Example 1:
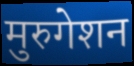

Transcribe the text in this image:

मुरुगेशन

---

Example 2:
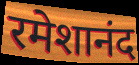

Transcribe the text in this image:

रमेशानंद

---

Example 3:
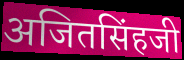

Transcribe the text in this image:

अजितसिंहजी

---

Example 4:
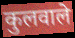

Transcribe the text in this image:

कुलवाले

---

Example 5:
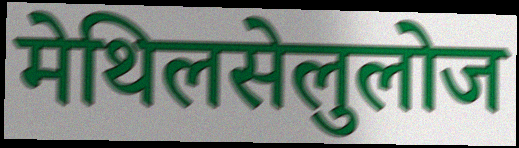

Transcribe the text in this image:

मेथिलसेलुलोज